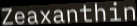
Zeaxanthin